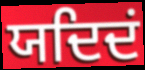
ਯਦਿਦਂ